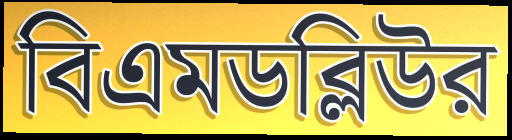
বিএমডব্লিউর